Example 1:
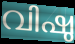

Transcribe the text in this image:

വിഷു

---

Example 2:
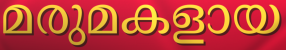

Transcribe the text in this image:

മരുമകളായ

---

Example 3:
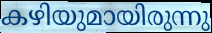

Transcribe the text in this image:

കഴിയുമായിരുന്നു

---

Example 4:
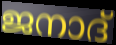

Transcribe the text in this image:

ജനാദ്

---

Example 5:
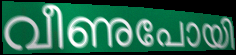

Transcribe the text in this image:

വീണുപോയി